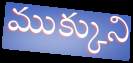
ముక్కుని